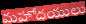
మహోదయులు